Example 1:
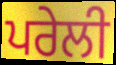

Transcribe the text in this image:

ਪਰੇਲੀ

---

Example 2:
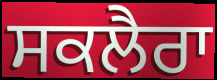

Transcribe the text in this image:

ਸਕਲੈਰਾ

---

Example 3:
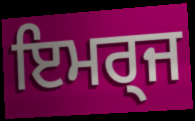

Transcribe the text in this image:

ਇਮਰ੍ਜ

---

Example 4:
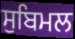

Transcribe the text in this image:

ਸੁਬਿਮਲ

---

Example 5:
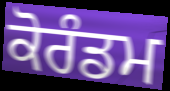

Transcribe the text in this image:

ਕੋਰੰਡਮ